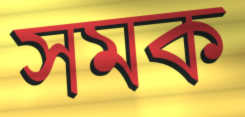
সমক